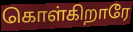
கொள்கிறாரே